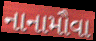
નાનામૌવા